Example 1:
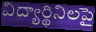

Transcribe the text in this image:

విద్యార్థినిలపై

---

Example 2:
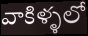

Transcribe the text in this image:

వాకిళ్ళలో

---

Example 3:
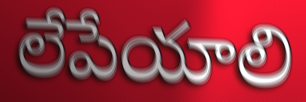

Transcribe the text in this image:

లేపేయాలి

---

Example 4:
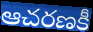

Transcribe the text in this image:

ఆచరణకీ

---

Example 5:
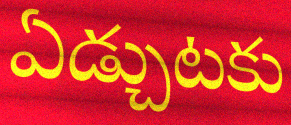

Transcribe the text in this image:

ఏడ్చుటకు